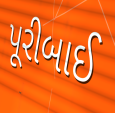
પૂરીબાઈ